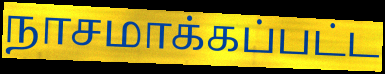
நாசமாக்கப்பட்ட